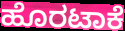
ಹೊರಟಾಕೆ